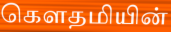
கெளதமியின்